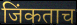
जिंकताच